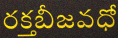
రక్తబీజవధో